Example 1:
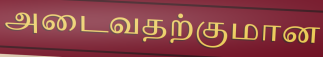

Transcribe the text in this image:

அடைவதற்குமான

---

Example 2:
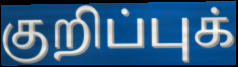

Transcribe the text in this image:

குறிப்புக்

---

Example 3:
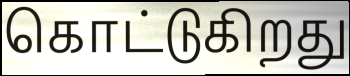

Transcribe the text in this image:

கொட்டுகிறது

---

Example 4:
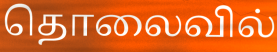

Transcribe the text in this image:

தொலைவில்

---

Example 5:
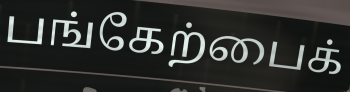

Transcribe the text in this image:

பங்கேற்பைக்